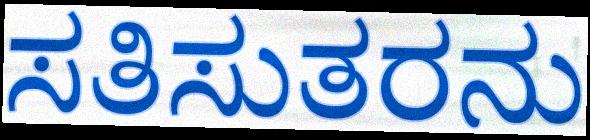
ಸತಿಸುತರನು